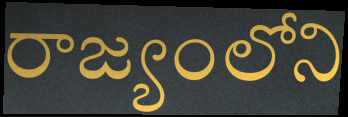
రాజ్యంలోని